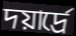
দয়ার্দ্রে